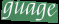
guage